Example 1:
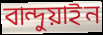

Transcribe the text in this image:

বান্দুয়াইন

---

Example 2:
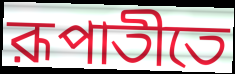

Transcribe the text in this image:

রূপাতীতে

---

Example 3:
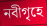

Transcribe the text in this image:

নবীগৃহে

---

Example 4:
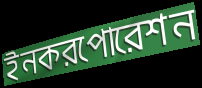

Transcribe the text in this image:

ইনকরপোরেশন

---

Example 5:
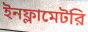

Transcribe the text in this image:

ইনফ্লামেটরি